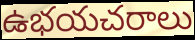
ఉభయచరాలు